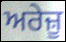
ਅਰੇਜ਼ੂ